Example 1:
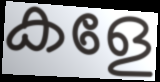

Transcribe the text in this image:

കളേ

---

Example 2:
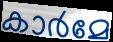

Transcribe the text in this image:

കാർമേ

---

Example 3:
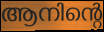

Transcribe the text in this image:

ആനിന്റെ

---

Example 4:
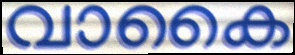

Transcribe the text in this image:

വാകൈ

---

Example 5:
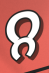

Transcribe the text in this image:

റ്റ